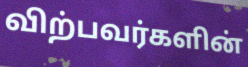
விற்பவர்களின்